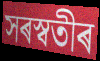
সৰস্বতীৰ